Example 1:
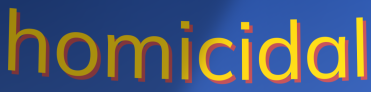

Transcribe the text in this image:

homicidal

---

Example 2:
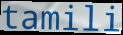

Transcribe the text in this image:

tamili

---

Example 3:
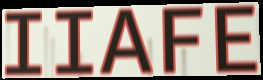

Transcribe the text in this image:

IIAFE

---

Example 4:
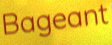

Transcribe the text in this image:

Bageant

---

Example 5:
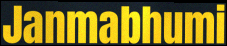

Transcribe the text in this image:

Janmabhumi